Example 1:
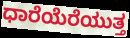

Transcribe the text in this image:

ಧಾರೆಯೆರೆಯುತ್ತ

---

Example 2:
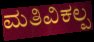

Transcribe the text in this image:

ಮತಿವಿಕಲ್ಪ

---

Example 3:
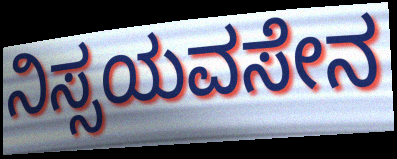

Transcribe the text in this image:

ನಿಸ್ಸಯವಸೇನ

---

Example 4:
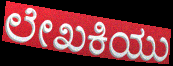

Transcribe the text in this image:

ಲೇಖಕಿಯು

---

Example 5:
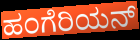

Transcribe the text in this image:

ಹಂಗೆರಿಯನ್